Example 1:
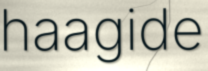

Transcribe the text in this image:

haagide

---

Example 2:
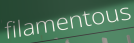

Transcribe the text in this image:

filamentous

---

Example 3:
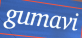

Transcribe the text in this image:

gumavi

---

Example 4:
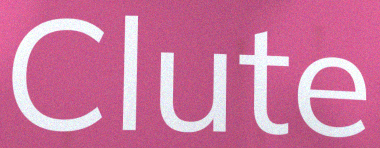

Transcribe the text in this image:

Clute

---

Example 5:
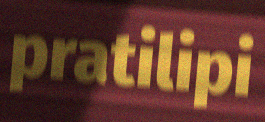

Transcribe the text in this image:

pratilipi